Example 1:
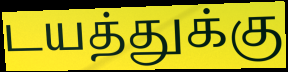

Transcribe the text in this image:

டயத்துக்கு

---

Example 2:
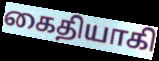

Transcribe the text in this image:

கைதியாகி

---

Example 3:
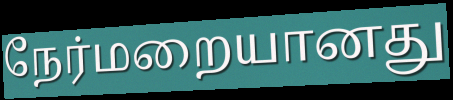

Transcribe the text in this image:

நேர்மறையானது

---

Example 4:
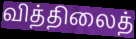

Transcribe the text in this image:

வித்திலைத்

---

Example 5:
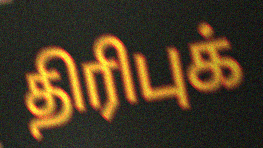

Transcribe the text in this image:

திரிபுக்